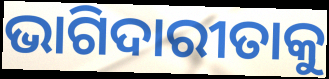
ଭାଗିଦାରୀତାକୁ